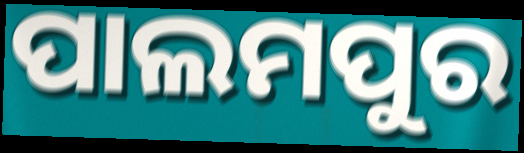
ପାଲମପୁର